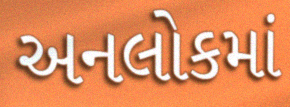
અનલોકમાં